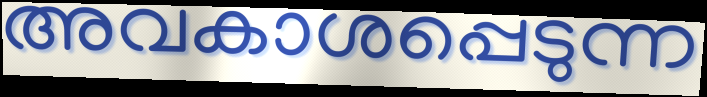
അവകാശപ്പെടുന്ന